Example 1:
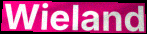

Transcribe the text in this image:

Wieland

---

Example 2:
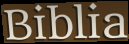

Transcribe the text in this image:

Biblia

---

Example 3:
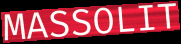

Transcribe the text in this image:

MASSOLIT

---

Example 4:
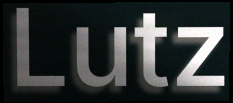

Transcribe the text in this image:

Lutz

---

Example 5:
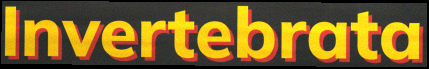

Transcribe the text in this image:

Invertebrata